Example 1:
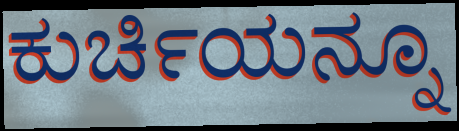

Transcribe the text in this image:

ಕುರ್ಚಿಯನ್ನೂ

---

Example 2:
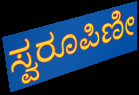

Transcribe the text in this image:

ಸ್ವರೂಪಿಣೀ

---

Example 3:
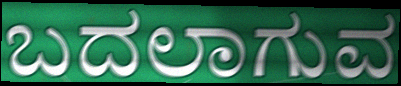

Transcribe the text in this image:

ಬದಲಾಗುವ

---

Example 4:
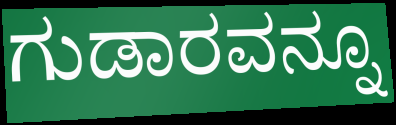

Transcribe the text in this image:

ಗುಡಾರವನ್ನೂ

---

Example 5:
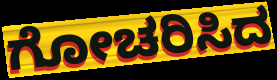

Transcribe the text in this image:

ಗೋಚರಿಸಿದ